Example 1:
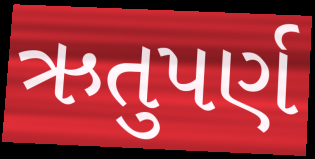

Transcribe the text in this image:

ઋતુપર્ણ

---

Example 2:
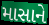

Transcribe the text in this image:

માસાને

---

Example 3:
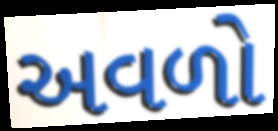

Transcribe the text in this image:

અવળો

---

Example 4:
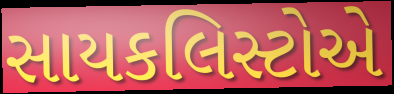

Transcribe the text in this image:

સાયકલિસ્ટોએ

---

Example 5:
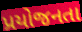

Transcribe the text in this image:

પ્રયોજનતા